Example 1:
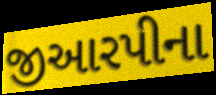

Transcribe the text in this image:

જીઆરપીના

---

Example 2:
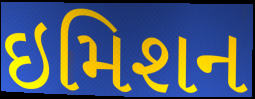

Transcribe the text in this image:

ઇમિશન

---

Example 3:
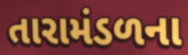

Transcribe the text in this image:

તારામંડળના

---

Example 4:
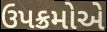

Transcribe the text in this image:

ઉપક્રમોએ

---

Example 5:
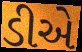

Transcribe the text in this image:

ડીએ